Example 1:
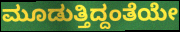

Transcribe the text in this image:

ಮೂಡುತ್ತಿದ್ದಂತೆಯೇ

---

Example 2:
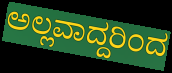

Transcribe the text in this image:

ಅಲ್ಲವಾದ್ದರಿಂದ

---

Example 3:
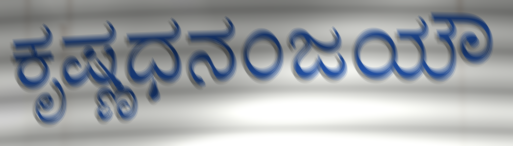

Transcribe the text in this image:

ಕೃಷ್ಣಧನಂಜಯೌ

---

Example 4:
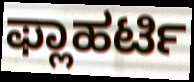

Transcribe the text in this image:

ಫ್ಲಾಹರ್ಟಿ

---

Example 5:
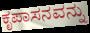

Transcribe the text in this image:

ಕೃಪಾಸನವನ್ನು